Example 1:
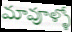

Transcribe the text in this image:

మావూళ్ళో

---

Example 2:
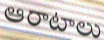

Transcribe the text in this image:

ఆరాటాలు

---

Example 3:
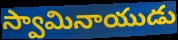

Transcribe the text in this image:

స్వామినాయుడు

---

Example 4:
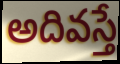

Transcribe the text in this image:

అదివస్తే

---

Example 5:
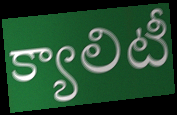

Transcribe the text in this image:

క్యాలిటీ